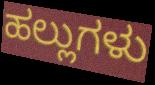
ಹಲ್ಲುಗಳು